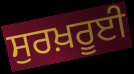
ਸੁਰਖ਼ਰੂਈ